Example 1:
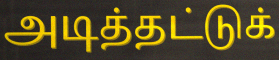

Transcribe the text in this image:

அடித்தட்டுக்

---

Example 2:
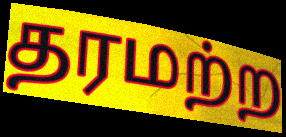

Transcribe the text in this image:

தரமற்ற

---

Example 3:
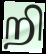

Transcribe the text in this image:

றி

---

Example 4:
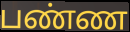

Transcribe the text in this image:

பண்ண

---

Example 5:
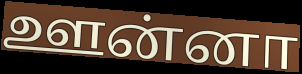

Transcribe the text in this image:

ஊன்னா